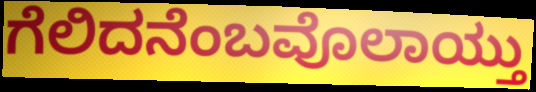
ಗೆಲಿದನೆಂಬವೊಲಾಯ್ತು